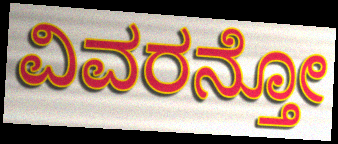
ವಿವರನ್ತೋ